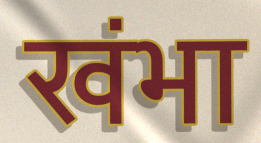
खंभा